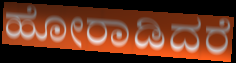
ಹೋರಾಡಿದರೆ